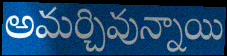
అమర్చివున్నాయి